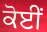
ਕੋਈਂ